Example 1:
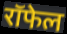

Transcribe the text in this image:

रॉफेल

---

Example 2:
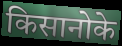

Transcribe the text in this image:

किसानोके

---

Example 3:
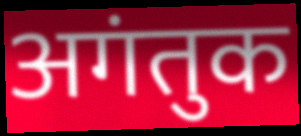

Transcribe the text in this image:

अगंतुक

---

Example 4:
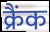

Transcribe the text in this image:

क्रैंक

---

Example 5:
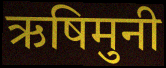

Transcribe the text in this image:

ऋषिमुनी